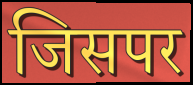
जिसपर